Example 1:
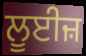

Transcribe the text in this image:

ਲੂਈਜ਼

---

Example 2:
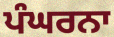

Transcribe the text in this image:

ਪੰਘਰਨਾ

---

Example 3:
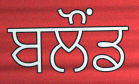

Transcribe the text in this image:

ਬਲੌਂਡ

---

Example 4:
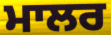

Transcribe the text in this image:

ਮਾਲਰ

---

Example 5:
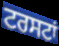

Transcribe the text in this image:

ਟਰਸਟਾਂ